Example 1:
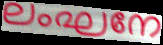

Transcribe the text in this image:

ലംഘനേ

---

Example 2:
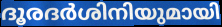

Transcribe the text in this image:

ദൂരദർശിനിയുമായി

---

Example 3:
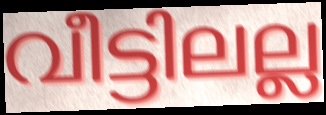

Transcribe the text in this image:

വീട്ടിലല്ല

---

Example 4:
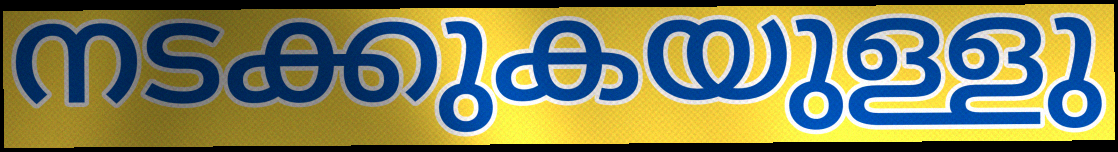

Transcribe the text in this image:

നടക്കുകയുള്ളു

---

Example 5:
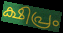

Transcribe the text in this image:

ക്ഷിപ്രം